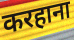
करहाना